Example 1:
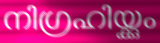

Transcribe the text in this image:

നിഗ്രഹിയ്ക്കും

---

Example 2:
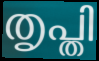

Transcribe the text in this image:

തൃപ്തി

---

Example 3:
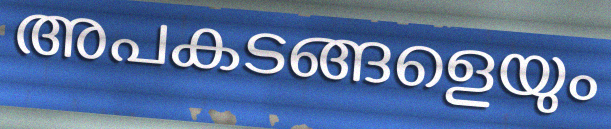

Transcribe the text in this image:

അപകടങ്ങളെയും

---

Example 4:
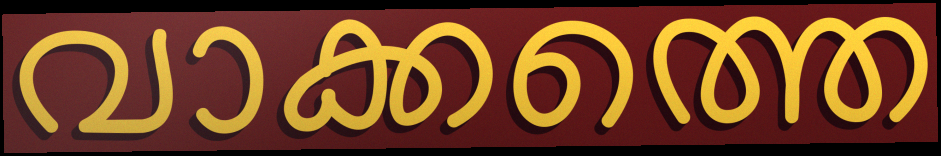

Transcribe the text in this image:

വാക്കത്തെ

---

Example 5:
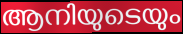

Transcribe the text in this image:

ആനിയുടെയും